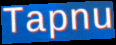
Tapnu